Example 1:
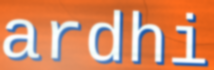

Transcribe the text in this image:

ardhi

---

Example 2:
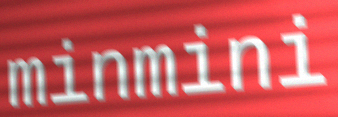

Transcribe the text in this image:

minmini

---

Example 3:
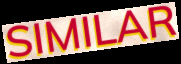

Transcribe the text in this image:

SIMILAR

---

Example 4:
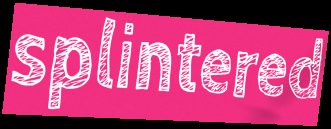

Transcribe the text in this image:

splintered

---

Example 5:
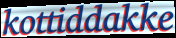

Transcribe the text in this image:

kottiddakke